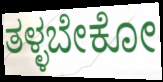
ತಳ್ಳಬೇಕೋ